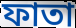
ফাতা